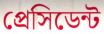
প্রেসিডেন্ট